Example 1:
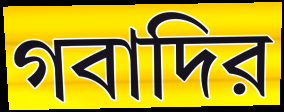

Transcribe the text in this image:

গবাদির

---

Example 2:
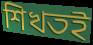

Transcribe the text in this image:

শিখতই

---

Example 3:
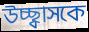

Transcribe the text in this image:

উচ্ছ্বাসকে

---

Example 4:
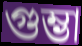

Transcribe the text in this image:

গুম্ভা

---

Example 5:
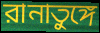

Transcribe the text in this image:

রানাতুঙ্গে